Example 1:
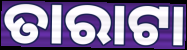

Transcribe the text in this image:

ତାରାଟା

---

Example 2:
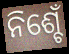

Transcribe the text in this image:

ନିଶ୍ଚେଁ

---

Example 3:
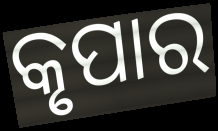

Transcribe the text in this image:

କୃପାର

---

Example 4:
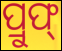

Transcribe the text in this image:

ପ୍ରୁଫ୍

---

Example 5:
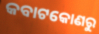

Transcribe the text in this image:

କବାଟକୋଣରୁ